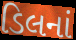
ડિલનાં